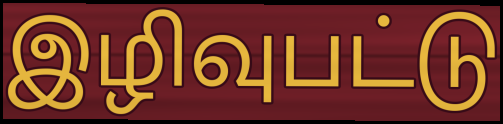
இழிவுபட்டு